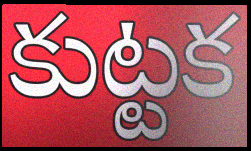
కుట్టక